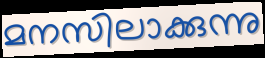
മനസിലാക്കുന്നു